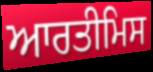
ਆਰਤੀਮਿਸ